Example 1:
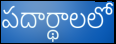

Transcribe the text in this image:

పదార్థాలలో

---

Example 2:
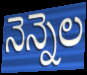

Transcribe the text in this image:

నెన్నెల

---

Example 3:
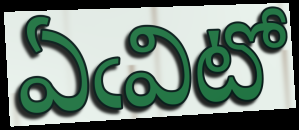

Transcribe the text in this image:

ఏఁవిటో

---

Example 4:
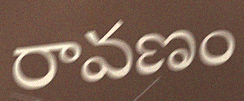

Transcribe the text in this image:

రావణం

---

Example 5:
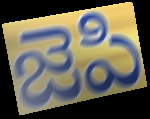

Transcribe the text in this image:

జెపి